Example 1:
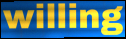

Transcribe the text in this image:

willing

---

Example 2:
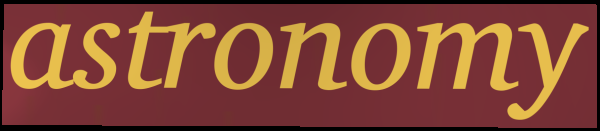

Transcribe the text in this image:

astronomy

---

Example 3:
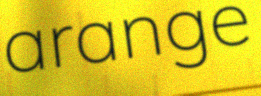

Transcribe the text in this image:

arange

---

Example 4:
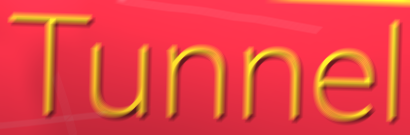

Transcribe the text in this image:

Tunnel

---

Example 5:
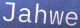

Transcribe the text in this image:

Jahwe